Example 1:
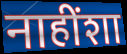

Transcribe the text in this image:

नाहींशा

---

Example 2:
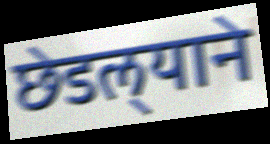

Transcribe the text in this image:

छेडल्याने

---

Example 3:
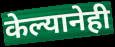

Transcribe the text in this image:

केल्यानेही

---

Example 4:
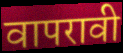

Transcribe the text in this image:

वापरावी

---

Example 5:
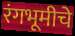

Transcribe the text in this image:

रंगभूमीचे